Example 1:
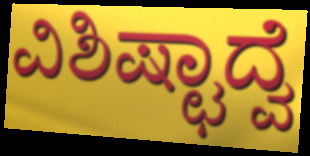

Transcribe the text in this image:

ವಿಶಿಷ್ಟಾದ್ವೆ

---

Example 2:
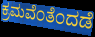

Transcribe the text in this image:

ಕ್ರಮವೆಂತೆಂದಡೆ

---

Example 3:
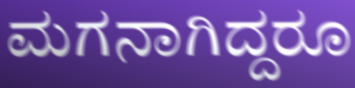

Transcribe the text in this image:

ಮಗನಾಗಿದ್ದರೂ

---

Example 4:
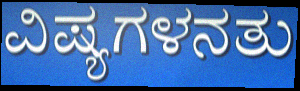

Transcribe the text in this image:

ವಿಷ್ಯಗಳನತು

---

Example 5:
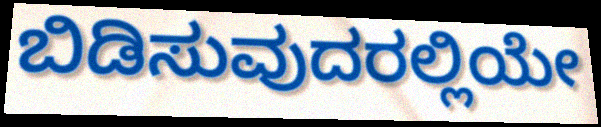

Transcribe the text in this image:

ಬಿಡಿಸುವುದರಲ್ಲಿಯೇ